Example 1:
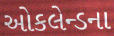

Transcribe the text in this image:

ઓકલેન્ડના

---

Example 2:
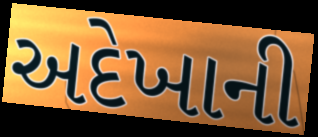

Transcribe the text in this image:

અદેખાની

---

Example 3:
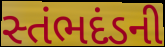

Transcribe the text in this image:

સ્તંભદંડની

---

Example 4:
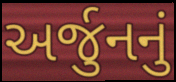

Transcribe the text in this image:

અર્જુનનું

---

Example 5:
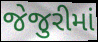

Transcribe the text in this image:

જેજુરીમાં